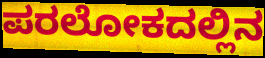
ಪರಲೋಕದಲ್ಲಿನ